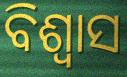
ବିଶ୍ଵାସ